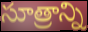
సూత్రాన్ని